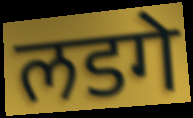
लडगे